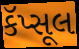
કૅપ્સૂલ